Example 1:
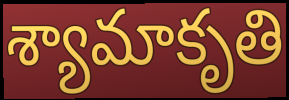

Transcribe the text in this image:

శ్యామాకృతి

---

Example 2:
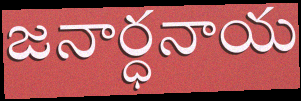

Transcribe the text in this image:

జనార్ధనాయ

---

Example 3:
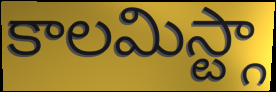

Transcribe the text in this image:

కాలమిస్ట్గా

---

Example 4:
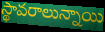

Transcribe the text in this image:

స్థావరాలున్నాయి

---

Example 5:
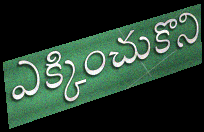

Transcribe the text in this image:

ఎక్కించుకొని